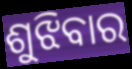
ଶୁଝିବାର